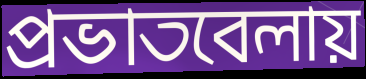
প্রভাতবেলায়